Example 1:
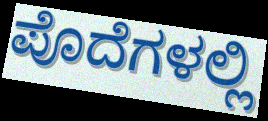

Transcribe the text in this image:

ಪೊದೆಗಳಲ್ಲಿ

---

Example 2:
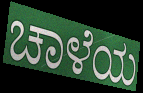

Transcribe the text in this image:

ಚಾಳೆಯ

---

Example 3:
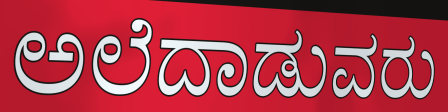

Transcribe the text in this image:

ಅಲೆದಾಡುವರು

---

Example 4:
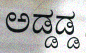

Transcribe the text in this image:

ಅಡ್ಡಡ್ಡ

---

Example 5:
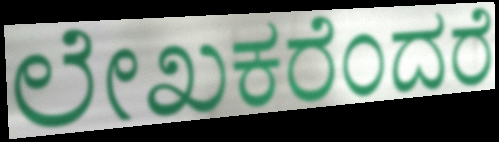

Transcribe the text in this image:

ಲೇಖಕರೆಂದರೆ